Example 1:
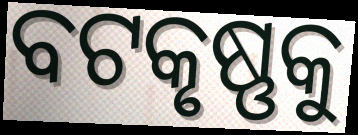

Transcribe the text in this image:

ବଟକୃଷ୍ଣକୁ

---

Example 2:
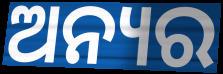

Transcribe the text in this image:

ଅନ୍ୟର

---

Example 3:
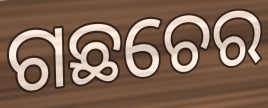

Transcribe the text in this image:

ଗଛଚେର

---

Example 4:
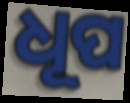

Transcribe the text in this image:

ଧୂପ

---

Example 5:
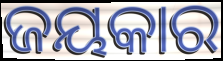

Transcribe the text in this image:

ଜୟକାର